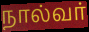
நால்வர்